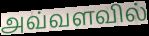
அவ்வளவில்